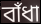
বাঁধা